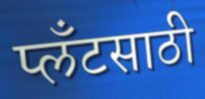
प्लँटसाठी